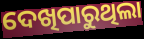
ଦେଖିପାରୁଥିଲା